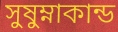
সুষুম্নাকান্ড